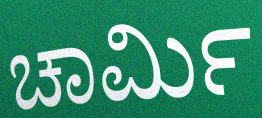
ಚಾರ್ಮಿ